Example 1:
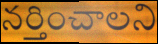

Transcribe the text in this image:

నర్తించాలని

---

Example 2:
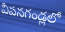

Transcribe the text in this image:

వీపనగండ్లలో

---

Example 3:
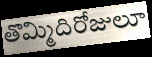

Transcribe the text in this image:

తొమ్మిదిరోజులూ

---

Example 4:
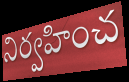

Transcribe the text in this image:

నిర్వహించ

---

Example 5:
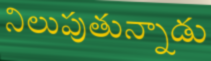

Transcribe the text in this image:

నిలుపుతున్నాడు